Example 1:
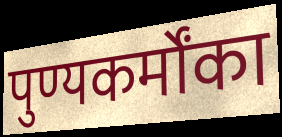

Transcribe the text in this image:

पुण्यकर्मोंका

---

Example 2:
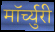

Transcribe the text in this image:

मॉर्च्युरी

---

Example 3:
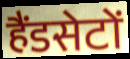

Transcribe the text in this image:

हैंडसेटों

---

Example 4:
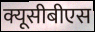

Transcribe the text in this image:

क्यूसीबीएस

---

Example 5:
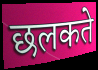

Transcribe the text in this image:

छलकते